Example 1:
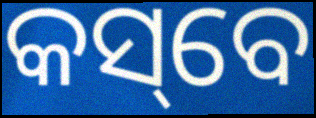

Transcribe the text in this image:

କସ୍‌ବେ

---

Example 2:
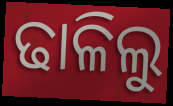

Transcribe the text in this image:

ଢାଳିଲୁ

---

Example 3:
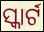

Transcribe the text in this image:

ସ୍କାର୍ଟ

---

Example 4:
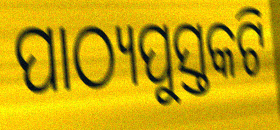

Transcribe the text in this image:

ପାଠ୍ୟପୁସ୍ତକଟି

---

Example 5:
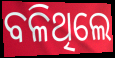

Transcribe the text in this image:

ବଳିଥିଲେ